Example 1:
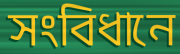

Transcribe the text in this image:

সংবিধানে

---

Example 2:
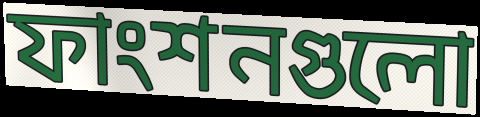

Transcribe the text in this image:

ফাংশনগুলো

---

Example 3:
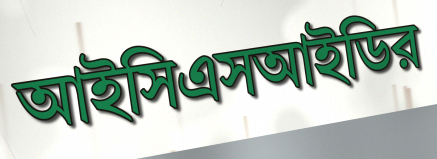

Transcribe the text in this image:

আইসিএসআইডির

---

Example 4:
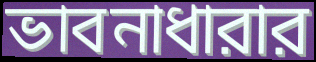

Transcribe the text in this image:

ভাবনাধারার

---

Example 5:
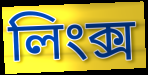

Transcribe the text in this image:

লিংক্স